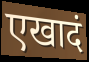
एखादं